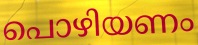
പൊഴിയണം